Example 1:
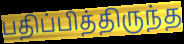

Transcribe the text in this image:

பதிப்பித்திருந்த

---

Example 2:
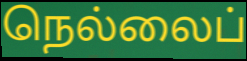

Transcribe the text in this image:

நெல்லைப்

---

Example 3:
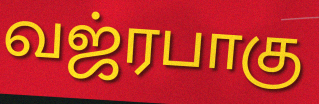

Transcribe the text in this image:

வஜ்ரபாகு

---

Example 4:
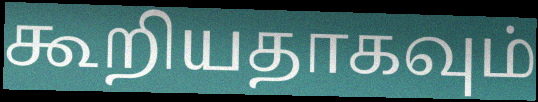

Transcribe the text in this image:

கூறியதாகவும்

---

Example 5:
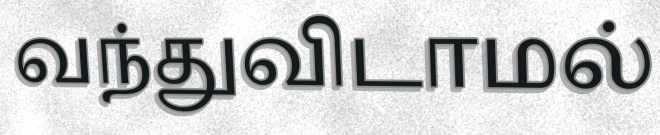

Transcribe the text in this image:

வந்துவிடாமல்